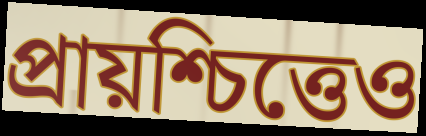
প্রায়শ্চিত্তেও